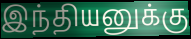
இந்தியனுக்கு